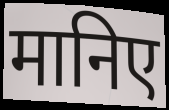
मानिए